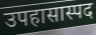
उपहासास्पद